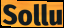
Sollu